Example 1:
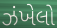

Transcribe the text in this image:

ઝંખેલો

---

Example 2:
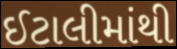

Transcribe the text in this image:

ઈટાલીમાંથી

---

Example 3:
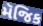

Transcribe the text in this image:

મૅજિક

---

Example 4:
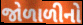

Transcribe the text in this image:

જોળાળીનો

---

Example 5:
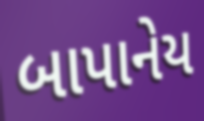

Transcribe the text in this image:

બાપાનેય